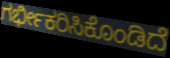
ಗರ್ಭೀಕರಿಸಿಕೊಂಡಿದೆ